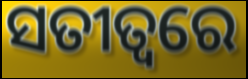
ସତୀତ୍ୱରେ